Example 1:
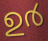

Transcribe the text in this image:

ഉർ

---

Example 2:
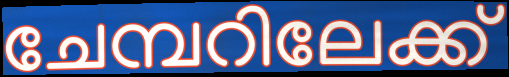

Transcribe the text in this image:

ചേമ്പറിലേക്ക്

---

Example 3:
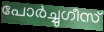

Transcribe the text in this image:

പോർച്ചുഗീസ്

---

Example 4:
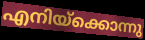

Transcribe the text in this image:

എനിയ്ക്കൊന്നു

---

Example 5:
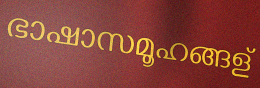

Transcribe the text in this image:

ഭാഷാസമൂഹങ്ങള്